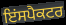
ਇਂਸਪੈਕਟਰ